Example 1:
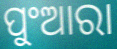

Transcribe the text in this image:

ପୁଂଆରା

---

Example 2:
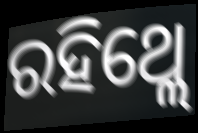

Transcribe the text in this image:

ରହିଥ୍ଲେ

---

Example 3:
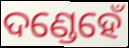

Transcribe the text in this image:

ଦଣ୍ଡେହେଁ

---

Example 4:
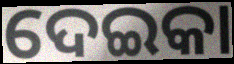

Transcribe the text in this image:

ଦେଇକା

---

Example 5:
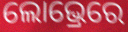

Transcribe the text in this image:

ଲୋଭ୍ରେରେ